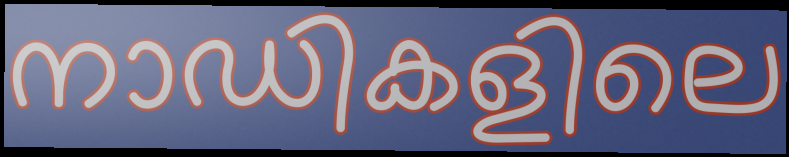
നാഡികളിലെ